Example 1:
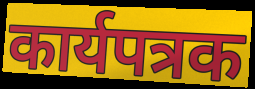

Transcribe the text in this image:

कार्यपत्रक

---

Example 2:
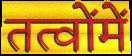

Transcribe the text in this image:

तत्वोंमें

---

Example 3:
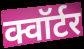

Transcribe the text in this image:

क्वॉर्टर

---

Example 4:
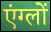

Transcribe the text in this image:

एंग्लों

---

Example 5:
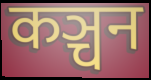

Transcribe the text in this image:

कञ्चन